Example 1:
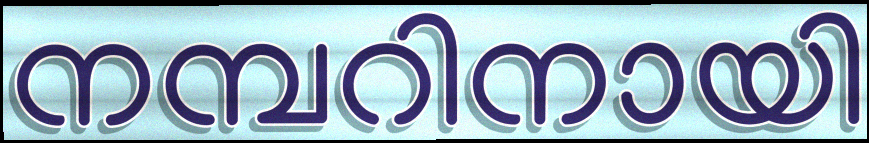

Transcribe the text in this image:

നമ്പറിനായി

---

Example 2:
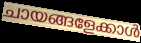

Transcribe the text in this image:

ചായങ്ങളേക്കാൾ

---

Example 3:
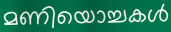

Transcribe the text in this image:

മണിയൊച്ചകൾ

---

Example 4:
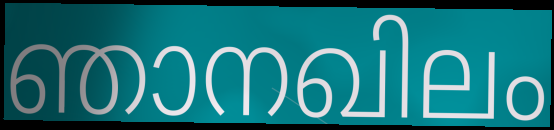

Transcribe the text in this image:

ഞാനഖിലം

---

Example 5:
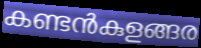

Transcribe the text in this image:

കണ്ടൻകുളങ്ങര